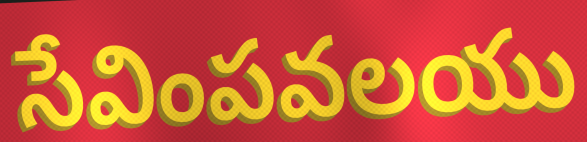
సేవింపవలయు